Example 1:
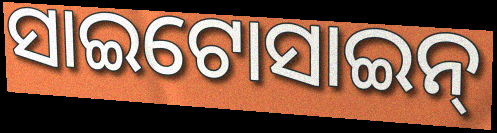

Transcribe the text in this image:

ସାଇଟୋସାଇନ୍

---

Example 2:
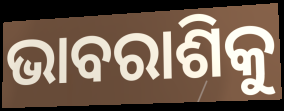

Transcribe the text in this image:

ଭାବରାଶିକୁ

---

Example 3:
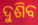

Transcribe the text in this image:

ଦୁଶିବ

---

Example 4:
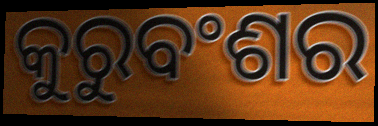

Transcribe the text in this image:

କୁରୁବଂଶର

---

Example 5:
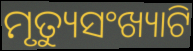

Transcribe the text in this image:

ମୃତ୍ୟୁସଂଖ୍ୟାଟି